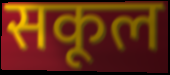
सकूल